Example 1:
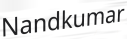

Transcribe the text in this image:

Nandkumar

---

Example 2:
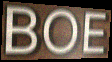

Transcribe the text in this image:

BOE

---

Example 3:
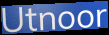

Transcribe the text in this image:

Utnoor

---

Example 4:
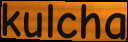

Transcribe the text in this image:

kulcha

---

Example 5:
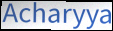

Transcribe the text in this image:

Acharyya